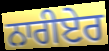
ਨਾਰੀਏਰ